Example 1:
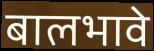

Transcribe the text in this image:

बालभावे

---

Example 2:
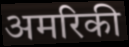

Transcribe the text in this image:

अमरिकी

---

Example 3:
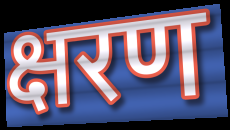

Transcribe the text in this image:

क्षरण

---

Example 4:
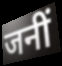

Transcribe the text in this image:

जनीं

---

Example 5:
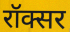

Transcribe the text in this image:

रॉक्सर